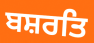
ਬਸ਼ਰਤਿ